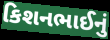
કિશનભાઈનું